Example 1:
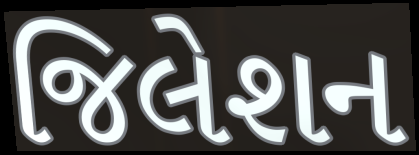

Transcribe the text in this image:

જિલેશન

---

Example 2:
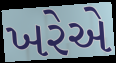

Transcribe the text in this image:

ખરેએ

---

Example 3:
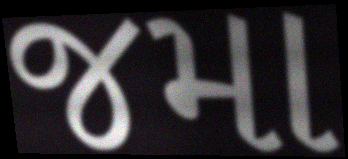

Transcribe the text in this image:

જમા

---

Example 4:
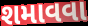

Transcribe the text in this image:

શમાવવા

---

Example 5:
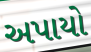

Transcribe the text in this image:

અપાયો